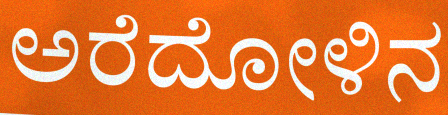
ಅರೆದೋಳಿನ